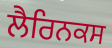
ਲੈਰਿਨਕਸ